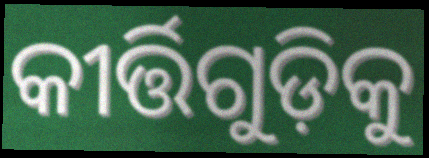
କୀର୍ତ୍ତିଗୁଡ଼ିକୁ